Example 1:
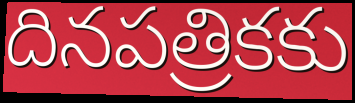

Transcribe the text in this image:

దినపత్రికకు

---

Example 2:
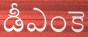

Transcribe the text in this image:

డీఎంకె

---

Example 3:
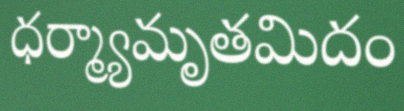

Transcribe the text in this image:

ధర్మ్యామృతమిదం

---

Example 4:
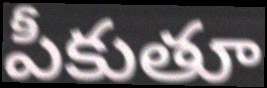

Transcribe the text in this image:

పీకుతూ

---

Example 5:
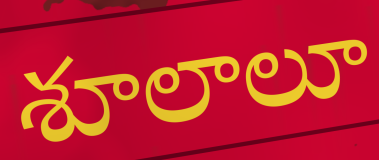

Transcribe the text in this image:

శూలాలూ